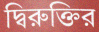
দ্বিরুক্তির